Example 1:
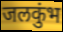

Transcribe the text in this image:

जलकुंभ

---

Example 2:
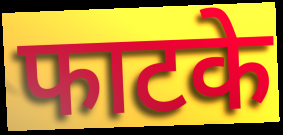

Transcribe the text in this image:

फाटके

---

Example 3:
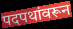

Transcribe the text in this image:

पदपथांवरून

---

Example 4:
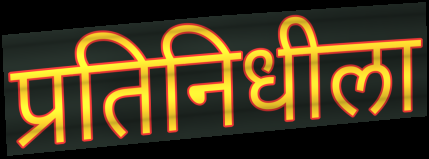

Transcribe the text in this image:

प्रतिनिधीला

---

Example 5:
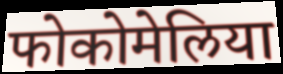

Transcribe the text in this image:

फोकोमेलिया